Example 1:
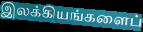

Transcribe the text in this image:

இலக்கியங்களைப்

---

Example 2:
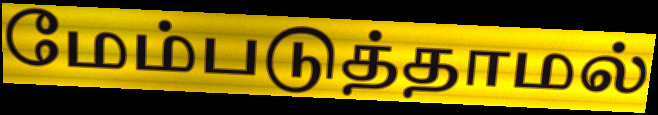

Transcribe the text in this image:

மேம்படுத்தாமல்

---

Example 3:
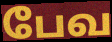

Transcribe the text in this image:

பேவ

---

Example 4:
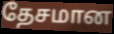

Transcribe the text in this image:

தேசமான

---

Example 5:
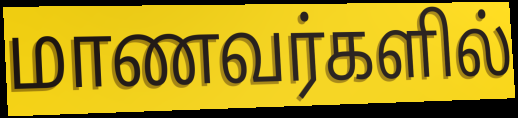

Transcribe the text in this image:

மாணவர்களில்